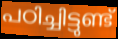
പഠിച്ചിട്ടുണ്ട്